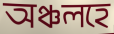
অঞ্চলহে